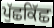
ਪੁੱਛਕਿੱਛ